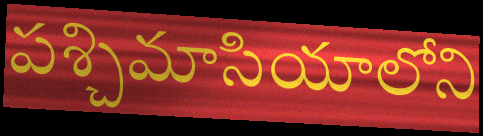
పశ్చిమాసియాలోని